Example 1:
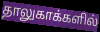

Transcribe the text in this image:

தாலுகாக்களில்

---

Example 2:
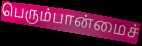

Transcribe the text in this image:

பெரும்பான்மைச்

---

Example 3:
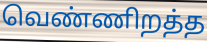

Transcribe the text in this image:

வெண்ணிறத்த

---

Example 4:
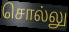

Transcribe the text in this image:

சொல்லு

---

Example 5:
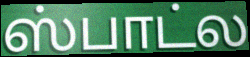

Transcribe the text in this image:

ஸ்பாட்ல